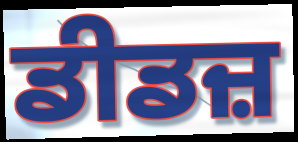
ਡੀਡਜ਼